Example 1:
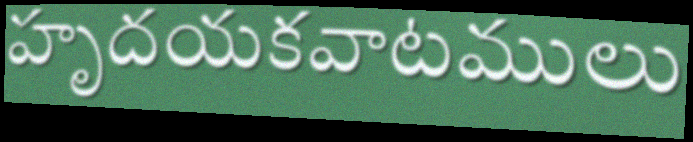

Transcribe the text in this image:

హృదయకవాటములు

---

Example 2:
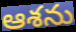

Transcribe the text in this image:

ఆశను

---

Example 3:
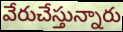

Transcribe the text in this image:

వేరుచేస్తున్నారు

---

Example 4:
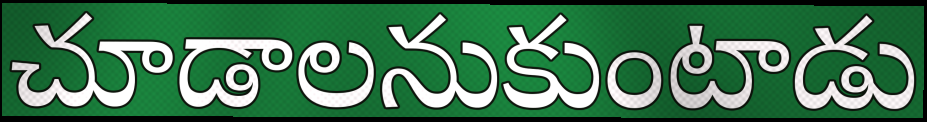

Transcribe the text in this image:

చూడాలనుకుంటాడు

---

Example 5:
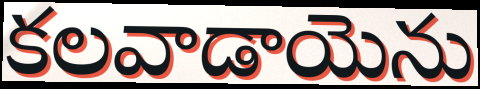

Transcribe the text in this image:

కలవాడాయెను